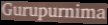
Gurupurnima